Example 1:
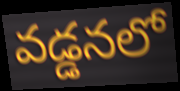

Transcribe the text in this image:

వడ్డనలో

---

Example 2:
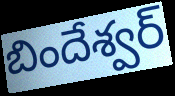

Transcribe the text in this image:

బిందేశ్వర్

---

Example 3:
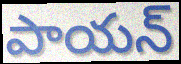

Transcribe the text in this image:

పాయన్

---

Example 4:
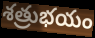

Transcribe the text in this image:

శత్రుభయం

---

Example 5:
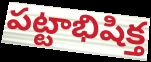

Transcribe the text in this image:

పట్టాభిషిక్త